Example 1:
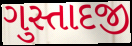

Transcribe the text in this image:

ગુસ્તાદજી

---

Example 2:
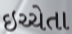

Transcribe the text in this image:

ઇચ્ચેતા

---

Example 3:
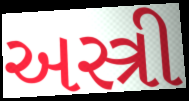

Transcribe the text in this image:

અસ્ત્રી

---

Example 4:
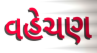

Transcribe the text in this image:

વહેચણ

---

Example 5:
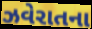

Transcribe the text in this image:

ઝવેરાતના